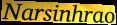
Narsinhrao